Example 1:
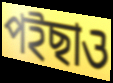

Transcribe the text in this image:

পইছাও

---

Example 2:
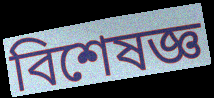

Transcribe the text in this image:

বিশেষজ্ঞ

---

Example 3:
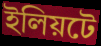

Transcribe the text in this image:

ইলিয়টে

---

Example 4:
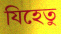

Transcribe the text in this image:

যিহেতু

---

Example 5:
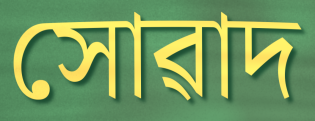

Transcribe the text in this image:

সোৱাদ